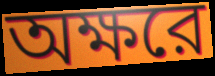
অক্ষরে